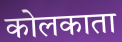
कोलकाता